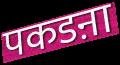
पकडऩा